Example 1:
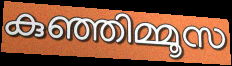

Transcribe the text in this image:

കുഞ്ഞിമ്മൂസ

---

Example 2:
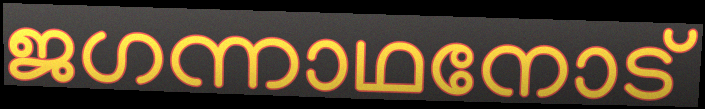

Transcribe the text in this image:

ജഗന്നാഥനോട്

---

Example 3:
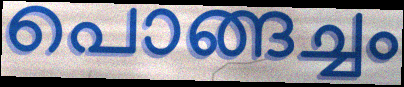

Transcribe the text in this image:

പൊങ്ങച്ചം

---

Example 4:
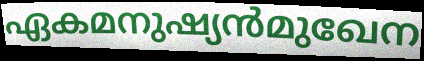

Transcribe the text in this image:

ഏകമനുഷ്യൻമുഖേന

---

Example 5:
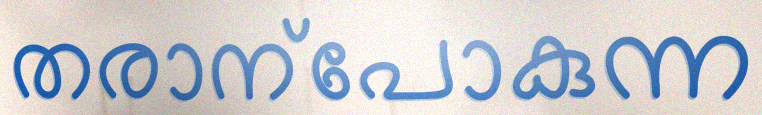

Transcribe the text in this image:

തരാന്പോകുന്ന